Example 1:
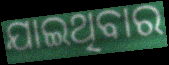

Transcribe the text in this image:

ଯାଇଥିବାର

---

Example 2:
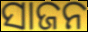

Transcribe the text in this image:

ସାଜନ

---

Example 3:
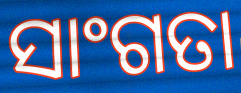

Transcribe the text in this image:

ସାଂଗତା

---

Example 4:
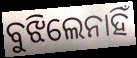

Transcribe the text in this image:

ବୁଝିଲେନାହିଁ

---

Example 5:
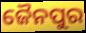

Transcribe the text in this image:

ଜୈନପୁର